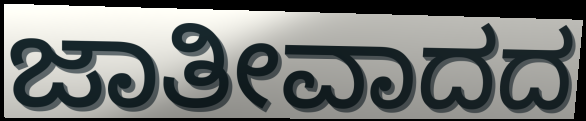
ಜಾತೀವಾದದ